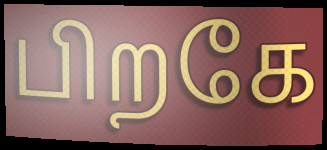
பிறகே